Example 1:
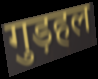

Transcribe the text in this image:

गुड़हल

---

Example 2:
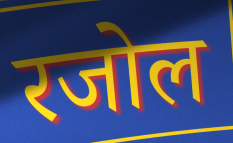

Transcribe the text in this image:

रजोल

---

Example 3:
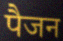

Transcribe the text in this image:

पैजन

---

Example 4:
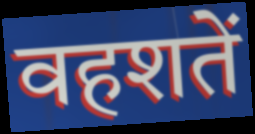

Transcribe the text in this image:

वहशतें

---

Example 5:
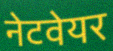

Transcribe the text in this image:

नेटवेयर